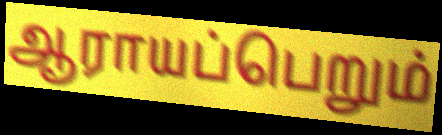
ஆராயப்பெறும்